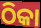
ଠିକା